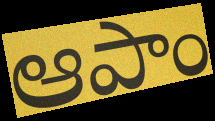
ఆపాం